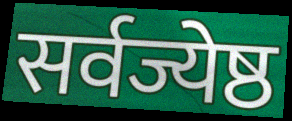
सर्वज्येष्ठ